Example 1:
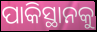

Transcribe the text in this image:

ପାକିସ୍ଥାନକୁ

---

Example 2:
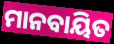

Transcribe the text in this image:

ମାନବାୟିତ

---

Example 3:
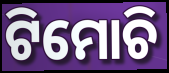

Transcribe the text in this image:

ଟିମୋଚି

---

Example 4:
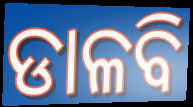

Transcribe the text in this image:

ଡାଳବି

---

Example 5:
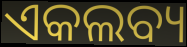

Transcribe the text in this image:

ଏକଲବ୍ୟ